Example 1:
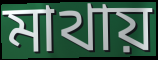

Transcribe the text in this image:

মাথায়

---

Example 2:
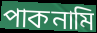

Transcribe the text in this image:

পাকনামি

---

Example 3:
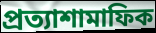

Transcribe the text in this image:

প্রত্যাশামাফিক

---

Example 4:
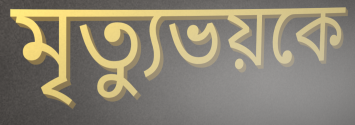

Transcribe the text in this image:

মৃত্যুভয়কে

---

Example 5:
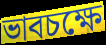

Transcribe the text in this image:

ভাবচক্ষে